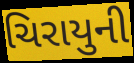
ચિરાયુની